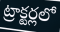
ట్రాక్టర్లలో